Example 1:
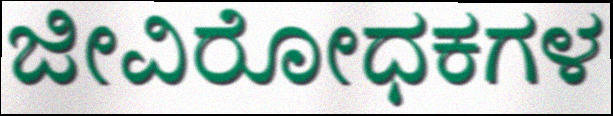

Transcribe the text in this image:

ಜೀವಿರೋಧಕಗಳ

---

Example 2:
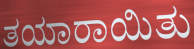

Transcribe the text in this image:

ತಯಾರಾಯಿತು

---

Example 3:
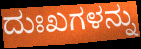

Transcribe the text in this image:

ದುಃಖಗಳನ್ನು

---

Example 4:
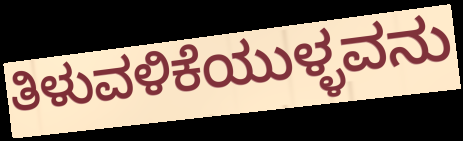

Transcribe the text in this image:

ತಿಳುವಳಿಕೆಯುಳ್ಳವನು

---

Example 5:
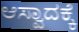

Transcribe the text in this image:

ಆಸ್ವಾದಕ್ಕೆ